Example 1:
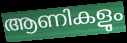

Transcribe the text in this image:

ആണികളും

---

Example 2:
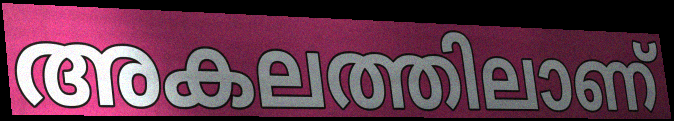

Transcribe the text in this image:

അകലത്തിലാണ്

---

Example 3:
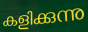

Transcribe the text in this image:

കളിക്കുന്നു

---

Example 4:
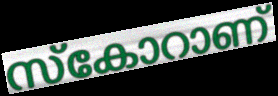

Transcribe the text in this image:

സ്‌കോറാണ്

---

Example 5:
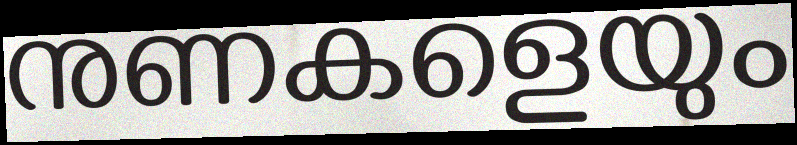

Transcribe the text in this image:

നുണകളെയും